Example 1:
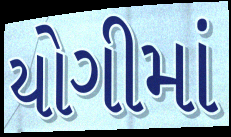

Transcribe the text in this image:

યોગીમાં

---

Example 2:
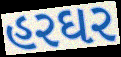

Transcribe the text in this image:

હરઘર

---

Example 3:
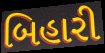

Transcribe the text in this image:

બિહારી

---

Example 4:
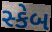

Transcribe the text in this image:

સ્કેબ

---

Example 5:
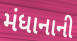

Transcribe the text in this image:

મંધાનાની